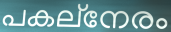
പകല്നേരം